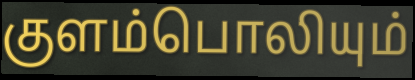
குளம்பொலியும்